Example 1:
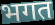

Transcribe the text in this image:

भगत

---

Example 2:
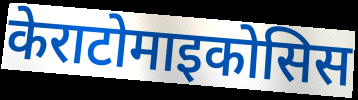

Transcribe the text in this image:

केराटोमाइकोसिस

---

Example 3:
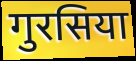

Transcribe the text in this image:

गुरसिया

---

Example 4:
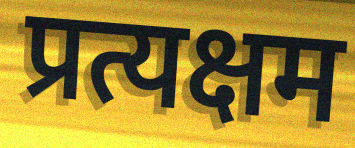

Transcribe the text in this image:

प्रत्यक्षम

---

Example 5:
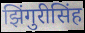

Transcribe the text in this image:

झिंगुरीसिंह